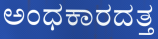
ಅಂಧಕಾರದತ್ತ